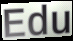
Edu